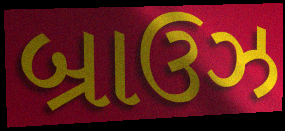
બ્રાઉઝ